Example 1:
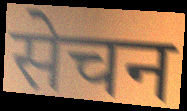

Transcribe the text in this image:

सेचन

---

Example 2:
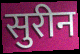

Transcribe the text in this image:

सुरीन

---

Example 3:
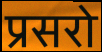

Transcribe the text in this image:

प्रसरो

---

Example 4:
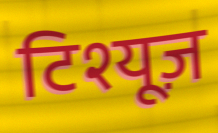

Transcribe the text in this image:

टिश्यूज़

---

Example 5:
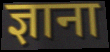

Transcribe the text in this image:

ज्ञाना